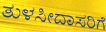
ತುಳಸೀದಾಸರಿಗೆ